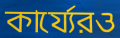
কার্য্যেরও